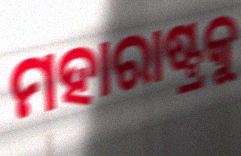
ମହାରାଷ୍ଟ୍ରକୁ